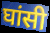
घांसी